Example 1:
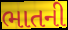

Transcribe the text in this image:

ભાતની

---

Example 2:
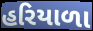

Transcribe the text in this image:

હરિયાળા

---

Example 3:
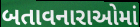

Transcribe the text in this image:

બતાવનારાઓમાં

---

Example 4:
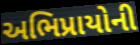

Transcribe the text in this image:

અભિપ્રાયોની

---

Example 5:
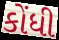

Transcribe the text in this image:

કોંધી